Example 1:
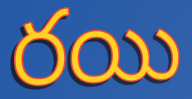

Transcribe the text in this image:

రయి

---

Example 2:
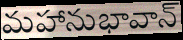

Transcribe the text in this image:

మహానుభావాన్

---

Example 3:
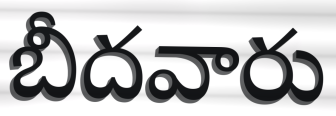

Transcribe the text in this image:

బీదవారు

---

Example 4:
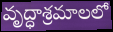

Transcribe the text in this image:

వృద్ధాశ్రమాలలో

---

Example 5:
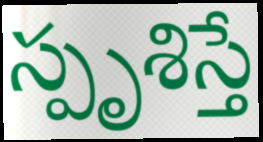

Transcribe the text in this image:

స్పృశిస్తే